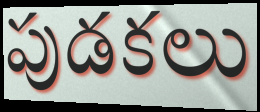
పుడకలు